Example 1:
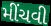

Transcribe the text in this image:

મીંચવી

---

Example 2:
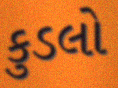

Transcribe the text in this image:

કુડલો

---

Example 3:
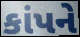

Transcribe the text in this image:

કાંપને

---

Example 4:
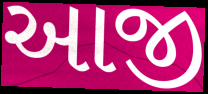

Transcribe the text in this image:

આજી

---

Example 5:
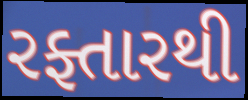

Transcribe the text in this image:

રફ્તારથી